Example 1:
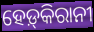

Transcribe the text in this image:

ହେଡ଼୍‌କିରାନୀ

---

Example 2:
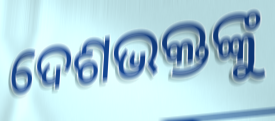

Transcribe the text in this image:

ଦେଶଭକ୍ତଙ୍କୁ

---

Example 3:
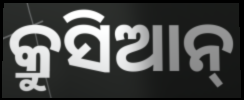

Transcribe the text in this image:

କ୍ରୁସିଆନ୍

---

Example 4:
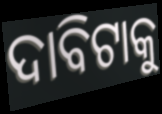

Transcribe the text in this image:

ଦାବିଟାକୁ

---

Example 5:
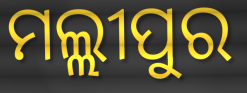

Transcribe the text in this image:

ମଲ୍ଲୀପୁର